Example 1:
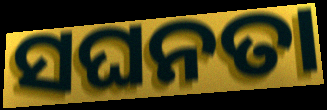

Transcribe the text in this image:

ସଘନତା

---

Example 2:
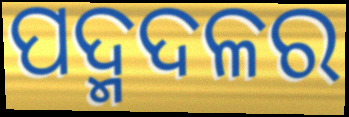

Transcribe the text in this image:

ପଦ୍ମଦଳର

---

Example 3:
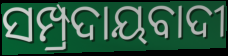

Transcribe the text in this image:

ସମ୍ପ୍ରଦାୟବାଦୀ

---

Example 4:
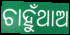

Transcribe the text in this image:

ଚାହୁଁଥାଅ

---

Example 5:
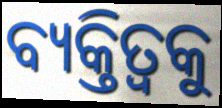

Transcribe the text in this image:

ବ୍ୟକ୍ତିତ୍ଵକୁ